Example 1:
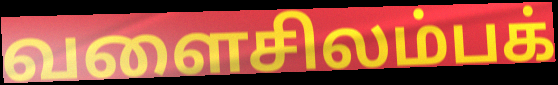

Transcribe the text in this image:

வளைசிலம்பக்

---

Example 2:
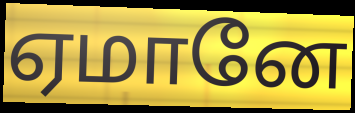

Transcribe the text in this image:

ஏமானே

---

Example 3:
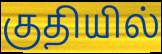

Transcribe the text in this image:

குதியில்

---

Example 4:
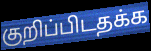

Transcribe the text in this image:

குறிப்பிடதக்க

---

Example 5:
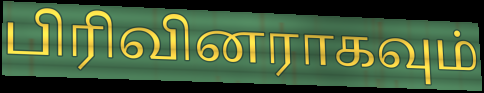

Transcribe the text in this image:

பிரிவினராகவும்